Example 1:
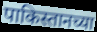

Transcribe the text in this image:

पाकिस्तानच्या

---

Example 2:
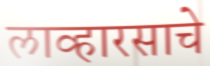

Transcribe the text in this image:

लाव्हारसाचे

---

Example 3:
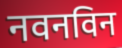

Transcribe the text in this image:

नवनविन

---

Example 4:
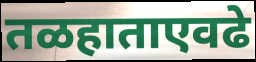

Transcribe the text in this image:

तळहाताएवढे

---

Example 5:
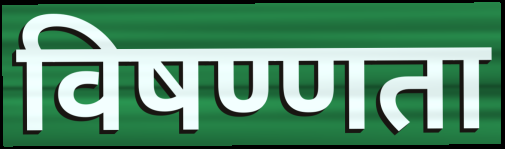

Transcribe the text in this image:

विषण्णता